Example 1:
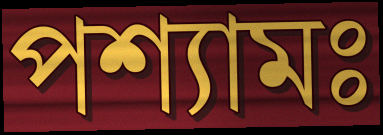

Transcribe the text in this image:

পশ্যামঃ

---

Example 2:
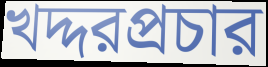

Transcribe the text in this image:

খদ্দরপ্রচার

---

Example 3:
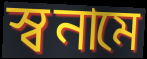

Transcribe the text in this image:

স্বনামে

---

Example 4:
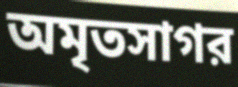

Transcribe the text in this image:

অমৃতসাগর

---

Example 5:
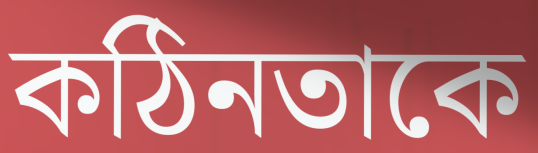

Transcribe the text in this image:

কঠিনতাকে